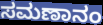
ಸಮಣಾನಂ